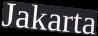
Jakarta